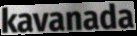
kavanada